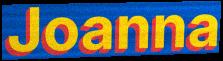
Joanna